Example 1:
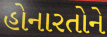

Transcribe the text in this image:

હોનારતોને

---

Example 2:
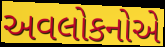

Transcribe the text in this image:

અવલોકનોએ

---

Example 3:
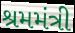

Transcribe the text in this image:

શ્રમમંત્રી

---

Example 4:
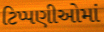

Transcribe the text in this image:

ટિપ્પણીઓમાં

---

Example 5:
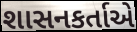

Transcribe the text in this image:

શાસનકર્તાએ